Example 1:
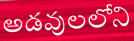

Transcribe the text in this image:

అడవులలోని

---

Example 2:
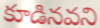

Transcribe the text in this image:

కూడినవని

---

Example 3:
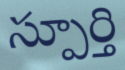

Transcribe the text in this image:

స్పూర్తి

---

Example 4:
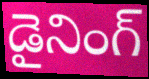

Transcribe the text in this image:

డైనింగ్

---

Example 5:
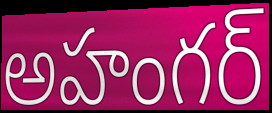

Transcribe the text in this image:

అహంగర్